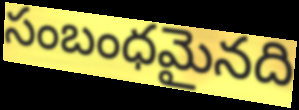
సంబంధమైనది